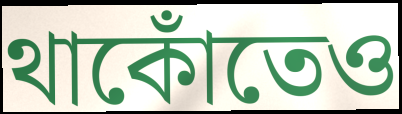
থাকোঁতেও